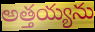
అత్తయ్యను